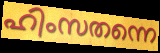
ഹിംസതന്നെ